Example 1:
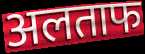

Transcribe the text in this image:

अलताफ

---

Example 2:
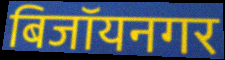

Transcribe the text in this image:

बिजॉयनगर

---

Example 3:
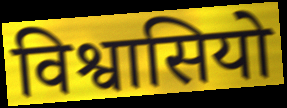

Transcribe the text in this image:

विश्वासियो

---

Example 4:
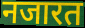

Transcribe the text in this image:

नजारत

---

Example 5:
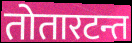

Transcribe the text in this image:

तोतारटन्त